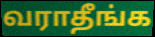
வராதீங்க